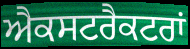
ਐਕਸਟਰੈਕਟਰਾਂ